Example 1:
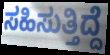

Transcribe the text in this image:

ಸಹಿಸುತ್ತಿದ್ದೆ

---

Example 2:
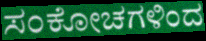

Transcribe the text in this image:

ಸಂಕೋಚಗಳಿಂದ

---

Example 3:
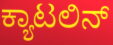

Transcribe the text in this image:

ಕ್ಯಾಟಲಿನ್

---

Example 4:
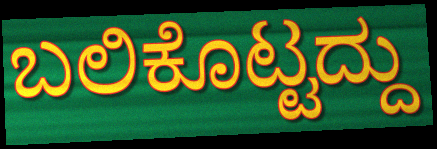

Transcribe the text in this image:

ಬಲಿಕೊಟ್ಟದ್ದು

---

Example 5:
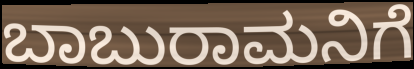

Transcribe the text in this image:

ಬಾಬುರಾಮನಿಗೆ